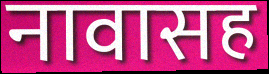
नावासह